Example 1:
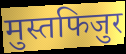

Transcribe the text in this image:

मुस्तफिजुर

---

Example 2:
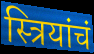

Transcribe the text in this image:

स्त्रियांचं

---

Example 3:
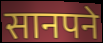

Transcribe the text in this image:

सानपने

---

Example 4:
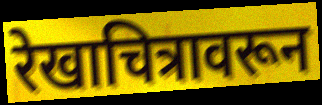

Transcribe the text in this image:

रेखाचित्रावरून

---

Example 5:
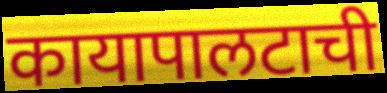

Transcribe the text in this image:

कायापालटाची